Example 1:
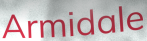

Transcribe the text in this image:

Armidale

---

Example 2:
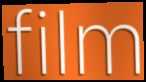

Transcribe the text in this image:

film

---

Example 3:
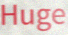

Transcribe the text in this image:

Huge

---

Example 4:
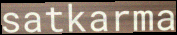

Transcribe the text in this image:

satkarma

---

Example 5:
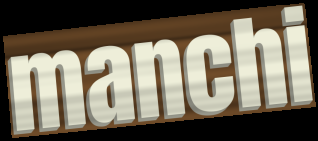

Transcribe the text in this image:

manchi